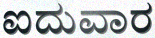
ಐದುವಾರ